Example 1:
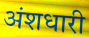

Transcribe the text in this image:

अंशधारी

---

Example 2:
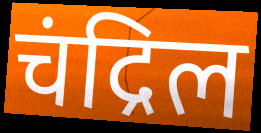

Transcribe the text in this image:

चंद्रिल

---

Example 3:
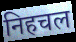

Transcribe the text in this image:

निहचल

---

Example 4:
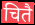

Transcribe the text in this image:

चितै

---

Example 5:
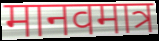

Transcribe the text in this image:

मानवमात्र